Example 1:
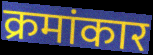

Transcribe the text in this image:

क्रमांकार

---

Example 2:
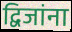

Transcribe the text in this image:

द्विजांना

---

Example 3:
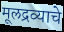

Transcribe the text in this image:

मूलद्रव्याचे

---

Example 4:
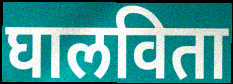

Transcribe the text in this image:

घालविता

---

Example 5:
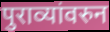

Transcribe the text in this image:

पुराव्यांवरुन